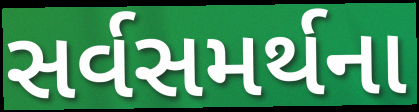
સર્વસમર્થના